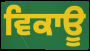
ਵਿਕਾਊ